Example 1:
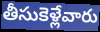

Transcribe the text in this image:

తీసుకెళ్లేవారు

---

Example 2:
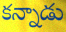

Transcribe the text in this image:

కన్నాడు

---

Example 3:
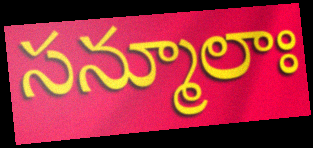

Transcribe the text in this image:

సన్మూలాః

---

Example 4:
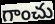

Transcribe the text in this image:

గాంచు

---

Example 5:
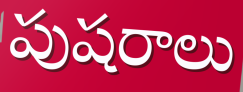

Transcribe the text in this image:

పుషరాలు